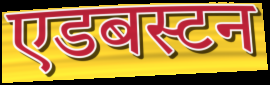
एडबस्टन